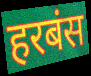
हरबंस